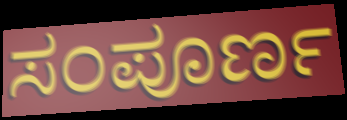
ಸಂಪೂರ್ಣ